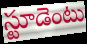
స్టూడెంటు